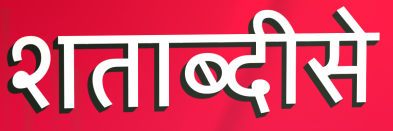
शताब्दीसे